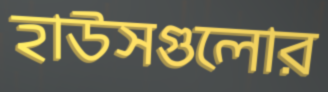
হাউসগুলোর